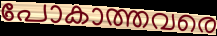
പോകാത്തവരെ